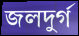
জলদুর্গ